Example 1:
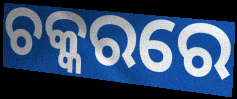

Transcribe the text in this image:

ଚକ୍କରରେ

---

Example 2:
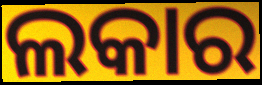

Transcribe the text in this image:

ଲକାର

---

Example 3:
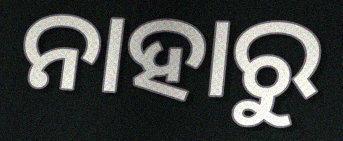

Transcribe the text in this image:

ନାହାରୁ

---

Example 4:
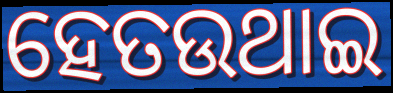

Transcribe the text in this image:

ହେତଉଥାଇ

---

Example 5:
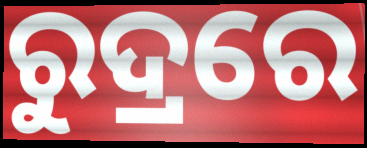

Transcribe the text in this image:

ରୁଦ୍ରରେ